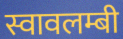
स्वावलम्बी